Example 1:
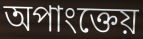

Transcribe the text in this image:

অপাংক্তেয়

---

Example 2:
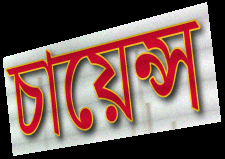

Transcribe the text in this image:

চায়েন্স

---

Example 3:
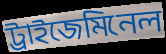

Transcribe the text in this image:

ট্ৰাইজেমিনেল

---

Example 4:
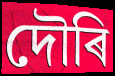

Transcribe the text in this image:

দৌৰি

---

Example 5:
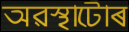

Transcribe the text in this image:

অৱস্থাটোৰ